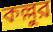
কল্লুর